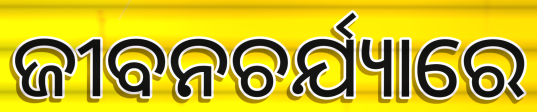
ଜୀବନଚର୍ଯ୍ୟାରେ